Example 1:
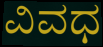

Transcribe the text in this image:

ವಿವಧ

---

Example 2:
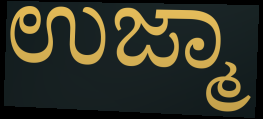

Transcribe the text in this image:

ಉಜ್ಮಾ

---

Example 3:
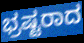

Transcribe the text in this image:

ಭ್ರಷ್ಟರಾದ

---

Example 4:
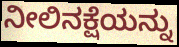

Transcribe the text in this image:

ನೀಲಿನಕ್ಷೆಯನ್ನು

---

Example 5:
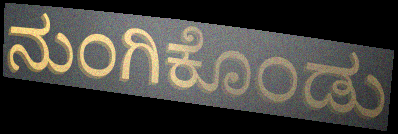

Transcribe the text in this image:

ನುಂಗಿಕೊಂಡು